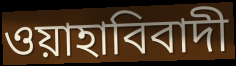
ওয়াহাবিবাদী